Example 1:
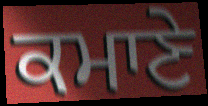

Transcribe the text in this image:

ਕਮਾਣੇ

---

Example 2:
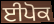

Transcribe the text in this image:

ਈਪੋਕ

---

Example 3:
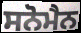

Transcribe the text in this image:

ਸਨੋਮੈਨ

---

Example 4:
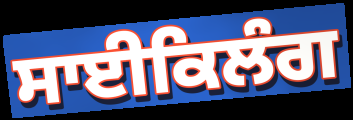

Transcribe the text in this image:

ਸਾਈਕਿਲੰਗ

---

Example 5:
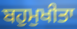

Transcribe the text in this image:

ਬਹੁਮੁਖੀਤਾ